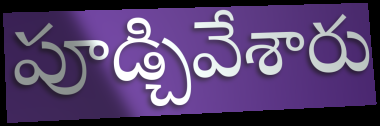
పూడ్చివేశారు